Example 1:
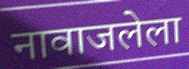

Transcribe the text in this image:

नावाजलेला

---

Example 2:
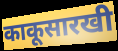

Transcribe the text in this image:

काकूसारखी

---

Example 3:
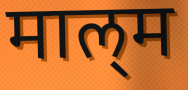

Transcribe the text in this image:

माल्म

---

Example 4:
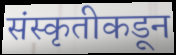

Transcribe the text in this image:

संस्कृतीकडून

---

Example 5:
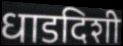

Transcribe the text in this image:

धाडदिशी